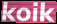
koik